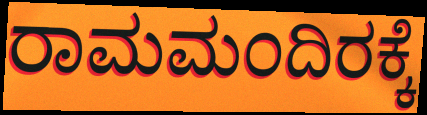
ರಾಮಮಂದಿರಕ್ಕೆ